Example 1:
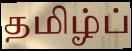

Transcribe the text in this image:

தமிழ்ப்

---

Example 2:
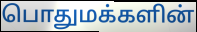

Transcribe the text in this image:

பொதுமக்களின்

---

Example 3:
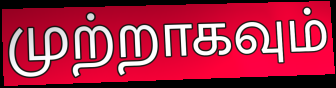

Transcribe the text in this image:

முற்றாகவும்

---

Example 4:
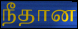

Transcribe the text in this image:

நீதான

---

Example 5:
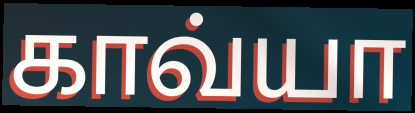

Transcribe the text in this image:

காவ்யா